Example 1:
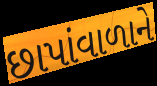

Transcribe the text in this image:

છાપાંવાળાને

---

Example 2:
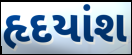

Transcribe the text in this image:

હૃદયાંશ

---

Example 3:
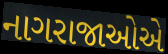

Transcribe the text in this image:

નાગરાજાઓએ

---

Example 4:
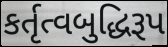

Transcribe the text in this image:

કર્તૃત્વબુદ્ધિરૂપ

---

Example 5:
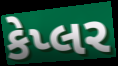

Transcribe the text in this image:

કેપ્લર